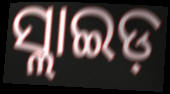
ସ୍ଲାଇଡ଼